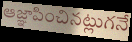
ఆజ్ఞాపించినట్లుగనే